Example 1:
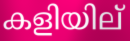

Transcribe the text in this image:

കളിയില്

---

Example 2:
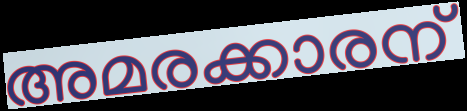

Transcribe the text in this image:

അമരക്കാരന്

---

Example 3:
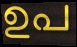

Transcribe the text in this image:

ഉപ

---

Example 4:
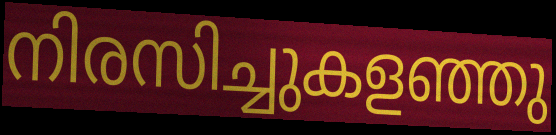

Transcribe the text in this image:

നിരസിച്ചുകളഞ്ഞു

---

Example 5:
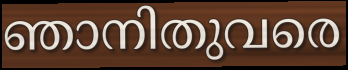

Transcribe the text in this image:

ഞാനിതുവരെ